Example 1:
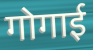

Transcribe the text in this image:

गोगाई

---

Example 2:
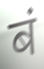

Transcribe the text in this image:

बं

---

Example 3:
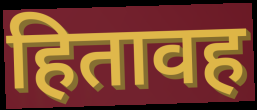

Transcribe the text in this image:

हितावह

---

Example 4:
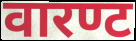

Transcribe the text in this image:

वारण्ट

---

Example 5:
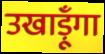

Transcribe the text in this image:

उखाड़ूँगा